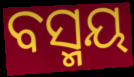
ବସ୍ମୟ